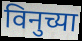
विनुच्या